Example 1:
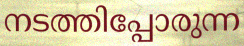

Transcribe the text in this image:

നടത്തിപ്പോരുന്ന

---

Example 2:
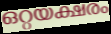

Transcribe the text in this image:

ഒറ്റയക്ഷരം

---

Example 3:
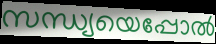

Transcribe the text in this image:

സന്ധ്യയെപ്പോൽ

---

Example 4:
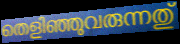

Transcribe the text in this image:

തെളിഞ്ഞുവരുന്നതു്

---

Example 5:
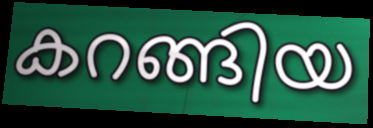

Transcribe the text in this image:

കറങ്ങിയ